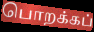
பொறக்கப்